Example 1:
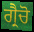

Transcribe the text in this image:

ਗ੍ਰੈਚੋ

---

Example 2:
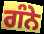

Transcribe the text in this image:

ਗੰਨੇ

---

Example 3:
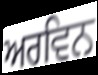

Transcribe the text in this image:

ਅਰਵਿਨ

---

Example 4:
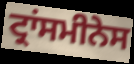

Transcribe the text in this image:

ਟ੍ਰਾਂਸਮੀਨੇਸ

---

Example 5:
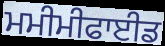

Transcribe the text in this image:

ਮਮੀਮੀਫਾਈਡ